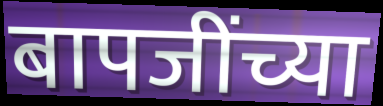
बापजींच्या